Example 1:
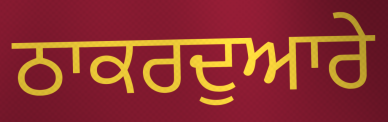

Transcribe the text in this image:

ਠਾਕਰਦੁਆਰੇ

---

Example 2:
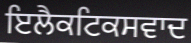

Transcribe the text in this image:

ਇਲੈਕਟਿਕਸਵਾਦ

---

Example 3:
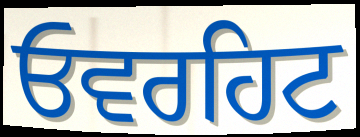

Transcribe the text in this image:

ਓਵਰਹਿਟ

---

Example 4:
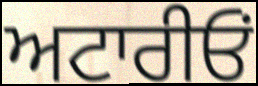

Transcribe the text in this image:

ਅਟਾਰੀਓਂ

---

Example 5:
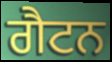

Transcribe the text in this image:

ਗੈਟਨ